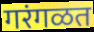
गरंगळत